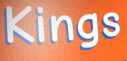
Kings